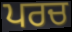
ਪਰਚ